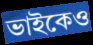
ভাইকেও